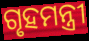
ଗୃହମନ୍ତ୍ରୀ